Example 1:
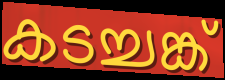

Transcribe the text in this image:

കടച്ചങ്ക്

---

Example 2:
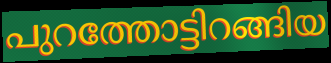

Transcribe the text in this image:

പുറത്തോട്ടിറങ്ങിയ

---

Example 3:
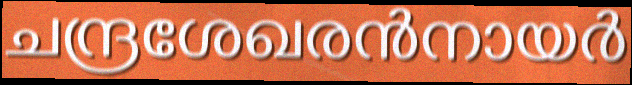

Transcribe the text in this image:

ചന്ദ്രശേഖരൻനായർ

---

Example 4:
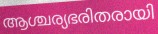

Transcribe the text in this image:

ആശ്ചര്യഭരിതരായി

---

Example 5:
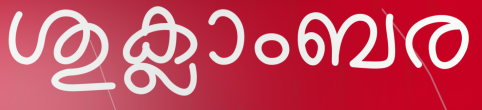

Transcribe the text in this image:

ശുക്ലാംബര